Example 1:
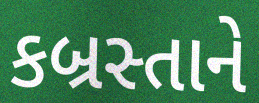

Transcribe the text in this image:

કબ્રસ્તાને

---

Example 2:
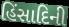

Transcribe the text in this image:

હિંસાદિની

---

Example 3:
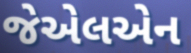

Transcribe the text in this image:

જેએલએન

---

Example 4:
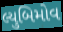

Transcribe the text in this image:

લ્યુબિમોવ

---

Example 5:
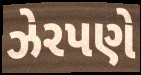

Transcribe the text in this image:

ઝેરપણે